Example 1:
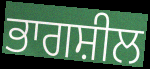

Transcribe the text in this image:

ਭਾਗਸ਼ੀਲ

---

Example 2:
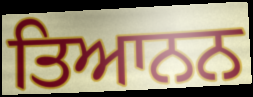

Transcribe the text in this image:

ਤਿਆਨਨ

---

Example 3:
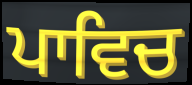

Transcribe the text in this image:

ਪਾਵਿਚ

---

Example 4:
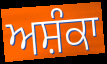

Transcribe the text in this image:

ਅਸ਼ੰਕਾ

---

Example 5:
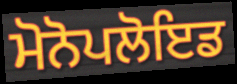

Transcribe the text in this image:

ਮੋਨੋਪਲੋਇਡ